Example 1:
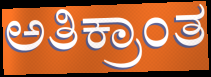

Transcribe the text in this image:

ಅತಿಕ್ರಾಂತ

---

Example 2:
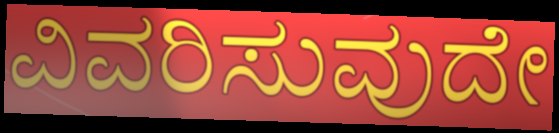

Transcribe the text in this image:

ವಿವರಿಸುವುದೇ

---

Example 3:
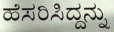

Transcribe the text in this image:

ಹೆಸರಿಸಿದ್ದನ್ನು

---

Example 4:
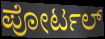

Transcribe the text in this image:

ಪೋರ್ಟಲ್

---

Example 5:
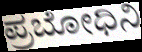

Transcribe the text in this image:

ಪ್ರಬೋಧಿನಿ